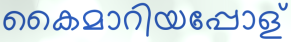
കൈമാറിയപ്പോള്